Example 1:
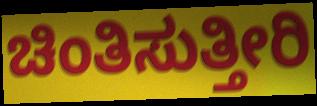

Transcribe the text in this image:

ಚಿಂತಿಸುತ್ತೀರಿ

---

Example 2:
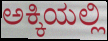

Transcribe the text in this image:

ಅಕ್ಕಿಯಲ್ಲಿ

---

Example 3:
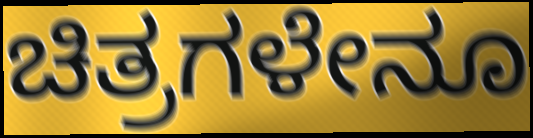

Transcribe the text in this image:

ಚಿತ್ರಗಳೇನೂ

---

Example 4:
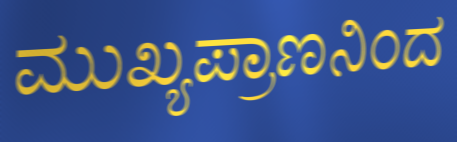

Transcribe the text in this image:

ಮುಖ್ಯಪ್ರಾಣನಿಂದ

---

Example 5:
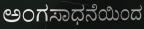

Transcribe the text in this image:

ಅಂಗಸಾಧನೆಯಿಂದ